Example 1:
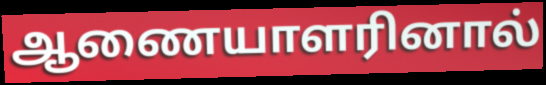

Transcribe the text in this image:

ஆணையாளரினால்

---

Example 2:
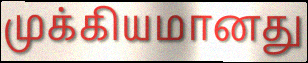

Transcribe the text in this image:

முக்கியமானது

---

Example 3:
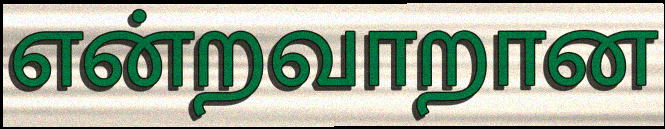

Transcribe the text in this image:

என்றவாறான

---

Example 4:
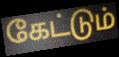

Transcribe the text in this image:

கேட்டும்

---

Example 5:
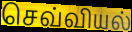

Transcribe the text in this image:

செவ்வியல்